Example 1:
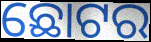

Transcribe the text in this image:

ଛୋଟର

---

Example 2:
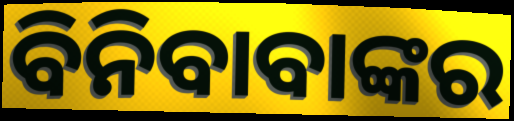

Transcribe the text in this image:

ବିନିବାବାଙ୍କର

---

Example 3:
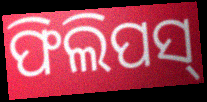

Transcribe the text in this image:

ଫିଲିପସ୍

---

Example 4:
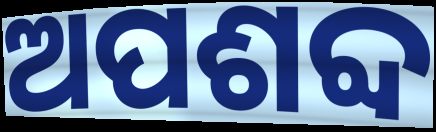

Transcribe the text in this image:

ଅପଶବ୍ଦ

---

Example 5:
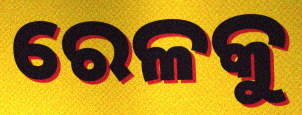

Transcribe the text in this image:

ରେଳକୁ